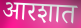
आरशात